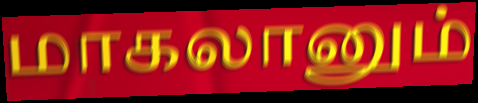
மாகலானும்